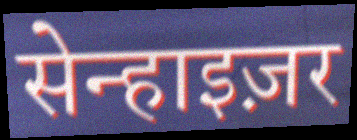
सेन्हाइज़र